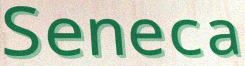
Seneca